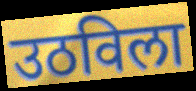
उठविला